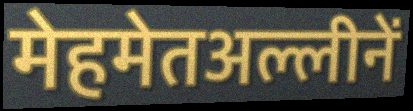
मेहमेतअल्लीनें